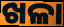
ଖଳା